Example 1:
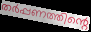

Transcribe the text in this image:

തർപ്പണത്തിന്റെ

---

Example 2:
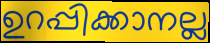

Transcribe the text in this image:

ഉറപ്പിക്കാനല്ല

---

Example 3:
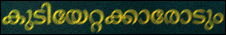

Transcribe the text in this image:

കുടിയേറ്റക്കാരോടും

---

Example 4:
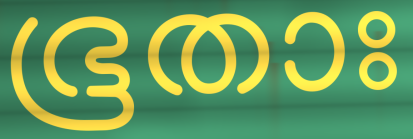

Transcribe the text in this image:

ഭൂതാഃ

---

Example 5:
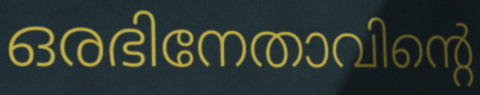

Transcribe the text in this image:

ഒരഭിനേതാവിന്റെ